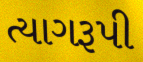
ત્યાગરૂપી